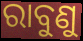
ରାବୁଣୁ